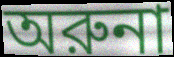
অরুনা